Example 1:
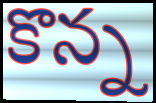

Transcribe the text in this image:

కొన్న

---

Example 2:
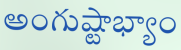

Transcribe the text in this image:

అంగుష్టాభ్యాం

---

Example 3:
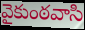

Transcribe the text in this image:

వైకుంఠవాసి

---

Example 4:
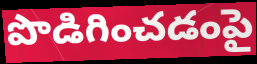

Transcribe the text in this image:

పొడిగించడంపై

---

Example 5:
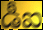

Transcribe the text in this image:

డీఐ